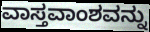
ವಾಸ್ತವಾಂಶವನ್ನು